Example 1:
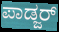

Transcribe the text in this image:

ಪಾಡ್ಜರ್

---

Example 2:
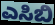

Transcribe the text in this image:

ಎಸಿಬಿ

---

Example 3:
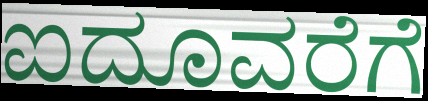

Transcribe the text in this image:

ಐದೂವರೆಗೆ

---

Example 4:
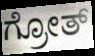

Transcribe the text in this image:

ಗ್ರೋತ್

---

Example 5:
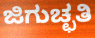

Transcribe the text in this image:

ಜಿಗುಚ್ಛತಿ